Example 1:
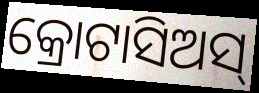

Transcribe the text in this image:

କ୍ରୋଟାସିଅସ୍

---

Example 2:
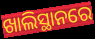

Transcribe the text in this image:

ଖାଲିସ୍ଥାନରେ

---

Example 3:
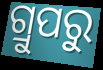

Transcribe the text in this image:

ଗ୍ରୁପରୁ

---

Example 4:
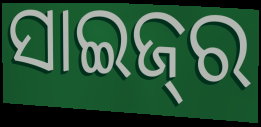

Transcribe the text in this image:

ସାଇଜ୍‌ର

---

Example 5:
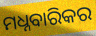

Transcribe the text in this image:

ମଧ୍ନବାରିକର